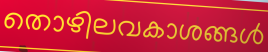
തൊഴിലവകാശങ്ങൾ